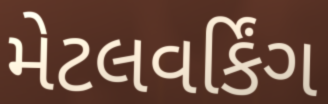
મેટલવર્કિંગ